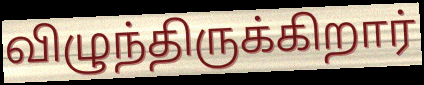
விழுந்திருக்கிறார்